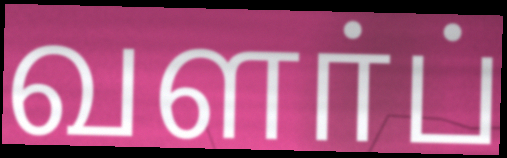
வளர்ப்